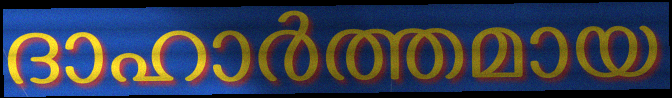
ദാഹാർത്തമായ